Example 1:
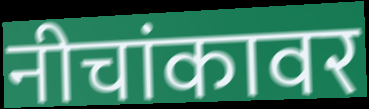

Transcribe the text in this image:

नीचांकावर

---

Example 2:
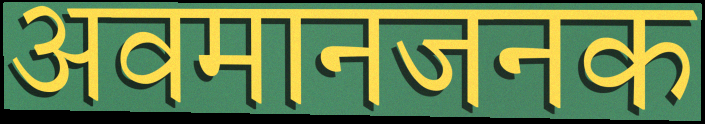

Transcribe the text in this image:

अवमानजनक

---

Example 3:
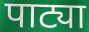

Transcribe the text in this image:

पाट्या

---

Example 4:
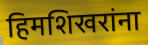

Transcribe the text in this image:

हिमशिखरांना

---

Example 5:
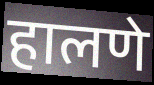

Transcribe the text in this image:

हालणे